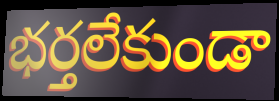
భర్తలేకుండా